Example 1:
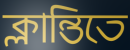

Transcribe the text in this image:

ক্লান্তিতে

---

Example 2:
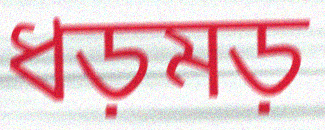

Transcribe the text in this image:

ধড়মড়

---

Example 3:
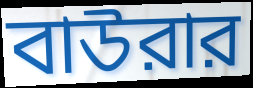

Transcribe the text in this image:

বাউরার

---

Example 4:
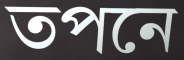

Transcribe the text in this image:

তপনে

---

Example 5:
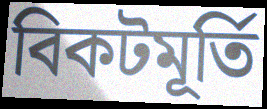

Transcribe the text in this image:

বিকটমূর্তি